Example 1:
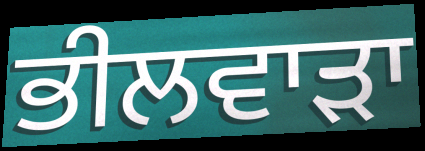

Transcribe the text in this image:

ਭੀਲਵਾੜਾ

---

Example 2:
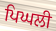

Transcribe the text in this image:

ਪਿਘਲੀ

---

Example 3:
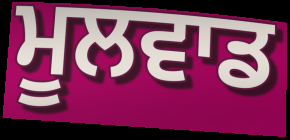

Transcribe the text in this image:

ਮੂਲਵਾਡ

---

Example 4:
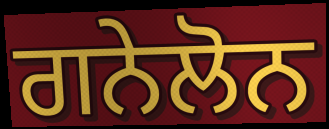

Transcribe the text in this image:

ਗਨੇਲੋਨ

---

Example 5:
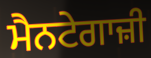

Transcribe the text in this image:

ਮੈਨਟੇਗਾਜ਼ੀ